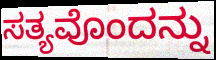
ಸತ್ಯವೊಂದನ್ನು